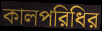
কালপরিধির